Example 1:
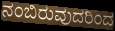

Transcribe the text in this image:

ನಂಬಿರುವುದರಿಂದ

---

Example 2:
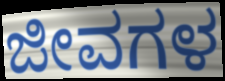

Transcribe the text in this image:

ಜೀವಗಳ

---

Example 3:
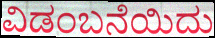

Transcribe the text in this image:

ವಿಡಂಬನೆಯಿದು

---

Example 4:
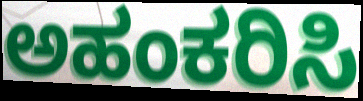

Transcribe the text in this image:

ಅಹಂಕರಿಸಿ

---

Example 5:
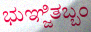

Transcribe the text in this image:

ಭುಞ್ಜಿತಬ್ಬಂ